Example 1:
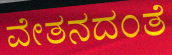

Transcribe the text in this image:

ವೇತನದಂತೆ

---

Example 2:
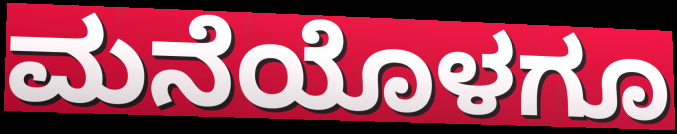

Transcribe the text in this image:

ಮನೆಯೊಳಗೂ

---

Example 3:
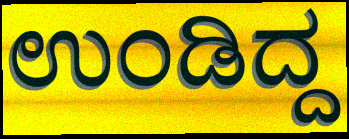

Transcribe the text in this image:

ಉಂಡಿದ್ದ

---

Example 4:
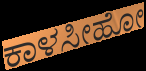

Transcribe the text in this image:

ಕಾಳಸೀಹೋ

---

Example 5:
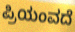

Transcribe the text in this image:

ಪ್ರಿಯಂವದೆ